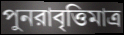
পুনরাবৃত্তিমাত্র